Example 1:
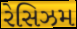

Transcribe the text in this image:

રેસિઝમ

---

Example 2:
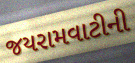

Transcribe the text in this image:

જયરામવાટીની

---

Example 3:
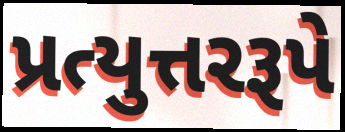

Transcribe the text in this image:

પ્રત્યુત્તરરૂપે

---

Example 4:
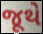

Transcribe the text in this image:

જૂથે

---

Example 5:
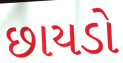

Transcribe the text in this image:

છાયડો